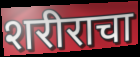
शरीराचा